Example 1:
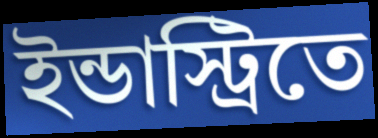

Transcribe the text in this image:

ইন্ডাস্ট্রিতে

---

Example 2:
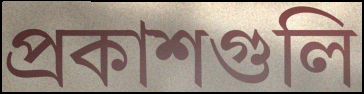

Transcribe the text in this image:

প্রকাশগুলি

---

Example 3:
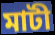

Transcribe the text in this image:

মাটী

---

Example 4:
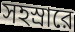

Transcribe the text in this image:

সহস্রারে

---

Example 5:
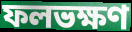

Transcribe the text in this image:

ফলভক্ষণ